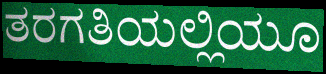
ತರಗತಿಯಲ್ಲಿಯೂ